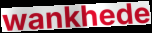
wankhede